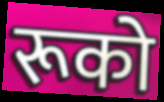
रूको